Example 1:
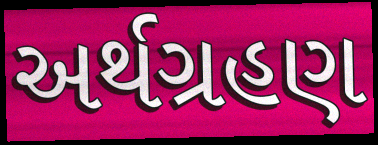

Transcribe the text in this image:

અર્થગ્રહણ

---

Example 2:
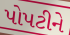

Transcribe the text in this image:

પોપટીને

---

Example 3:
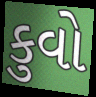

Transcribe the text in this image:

કુવો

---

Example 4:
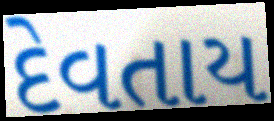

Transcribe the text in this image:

દેવતાય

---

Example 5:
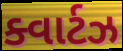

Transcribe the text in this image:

ક્વાર્ટઝ